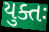
યુક્તઃ